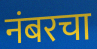
नंबरचा